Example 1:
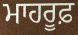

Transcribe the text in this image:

ਮਾਹਰੂਫ਼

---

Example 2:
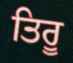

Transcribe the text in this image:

ਤਿਰੂ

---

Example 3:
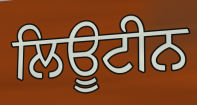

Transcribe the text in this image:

ਲਿਊਟੀਨ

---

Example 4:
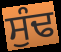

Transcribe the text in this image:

ਸੁੰਢ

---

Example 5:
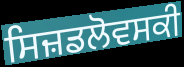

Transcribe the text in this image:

ਸਿਜ਼ਡਲੋਵਸਕੀ